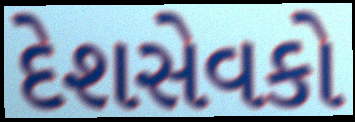
દેશસેવકો